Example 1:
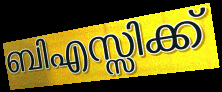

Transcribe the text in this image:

ബിഎസ്സിക്ക്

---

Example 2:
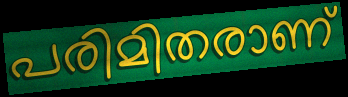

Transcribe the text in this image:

പരിമിതരാണ്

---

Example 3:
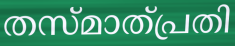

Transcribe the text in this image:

തസ്മാത്പ്രതി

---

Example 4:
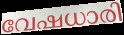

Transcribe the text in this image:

വേഷധാരി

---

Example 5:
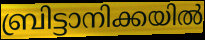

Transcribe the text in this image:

ബ്രിട്ടാനിക്കയിൽ